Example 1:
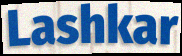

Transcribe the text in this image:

Lashkar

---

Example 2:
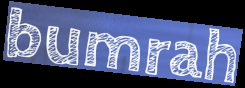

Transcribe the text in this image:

bumrah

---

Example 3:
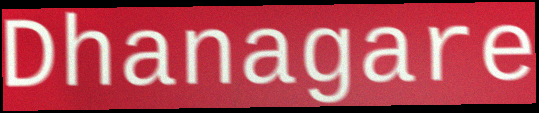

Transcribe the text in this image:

Dhanagare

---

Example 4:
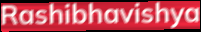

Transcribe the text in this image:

Rashibhavishya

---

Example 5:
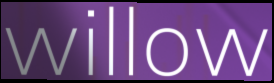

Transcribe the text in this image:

willow